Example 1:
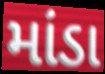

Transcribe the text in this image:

માંડા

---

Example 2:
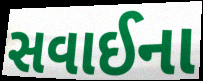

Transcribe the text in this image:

સવાઈના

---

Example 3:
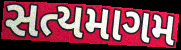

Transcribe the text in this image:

સત્યમાગમ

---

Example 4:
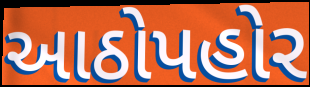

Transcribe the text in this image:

આઠોપહોર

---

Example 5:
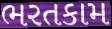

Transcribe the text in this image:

ભરતકામ